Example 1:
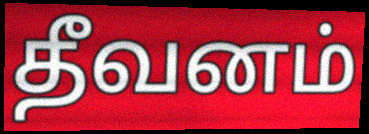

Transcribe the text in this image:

தீவனம்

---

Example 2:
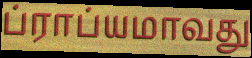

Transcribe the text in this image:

ப்ராப்யமாவது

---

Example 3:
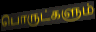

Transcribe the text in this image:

பொருட்களும்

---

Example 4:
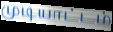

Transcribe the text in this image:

முடியாட்டம்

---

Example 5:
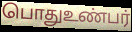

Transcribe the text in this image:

பொதுஉண்பர்